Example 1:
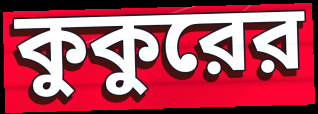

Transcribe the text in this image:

কুকুরের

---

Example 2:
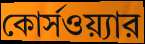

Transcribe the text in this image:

কোর্সওয়্যার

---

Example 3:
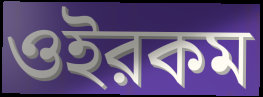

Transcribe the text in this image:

ওইরকম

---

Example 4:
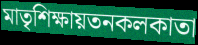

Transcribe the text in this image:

মাতৃশিক্ষায়তনকলকাতা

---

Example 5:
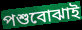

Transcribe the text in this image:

পশুবোঝাই